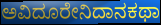
ಅವಿದೂರೇನಿದಾನಕಥಾ